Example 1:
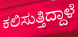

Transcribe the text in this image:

ಕಲಿಸುತ್ತಿದ್ದಾಳೆ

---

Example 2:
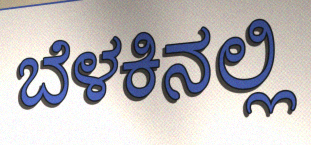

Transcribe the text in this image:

ಬೆಳಕಿನಲ್ಲಿ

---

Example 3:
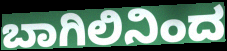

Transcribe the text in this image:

ಬಾಗಿಲಿನಿಂದ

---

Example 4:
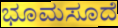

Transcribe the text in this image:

ಭೂಮಸೂದೆ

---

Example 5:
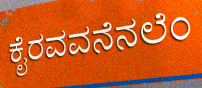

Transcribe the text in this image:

ಕೈರವವನೆನಲೆಂ